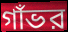
গাঁভর